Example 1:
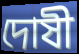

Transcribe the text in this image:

দোষী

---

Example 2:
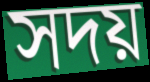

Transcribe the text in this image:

সদয়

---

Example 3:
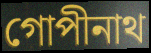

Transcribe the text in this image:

গোপীনাথ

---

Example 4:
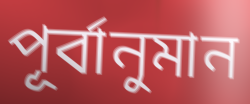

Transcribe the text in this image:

পূৰ্বানুমান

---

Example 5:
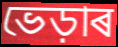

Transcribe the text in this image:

ভেড়াৰ